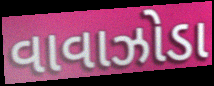
વાવાઝોડા